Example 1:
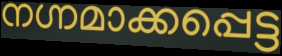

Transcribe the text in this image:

നഗ്നമാക്കപ്പെട്ട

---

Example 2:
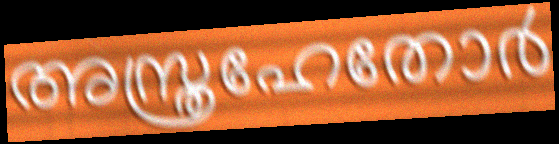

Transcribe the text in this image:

അസ്ത്രഹേതോർ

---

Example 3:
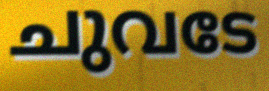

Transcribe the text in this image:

ചുവടേ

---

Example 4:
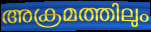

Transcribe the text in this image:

അക്രമത്തിലും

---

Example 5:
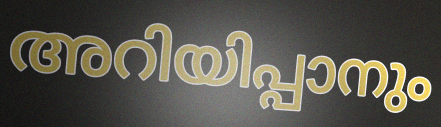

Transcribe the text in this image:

അറിയിപ്പാനും